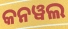
କନୱଲ